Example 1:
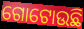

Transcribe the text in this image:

ଗୋଟୋଉଛି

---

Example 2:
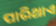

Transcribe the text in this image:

ପାରିଥାଏ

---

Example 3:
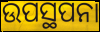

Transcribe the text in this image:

ଉପସ୍ଥପନା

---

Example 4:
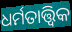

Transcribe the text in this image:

ଧର୍ମତାତ୍ତ୍ଵିକ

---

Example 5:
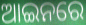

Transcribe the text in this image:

ଆଇନରେ